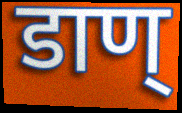
डाण्